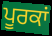
ਪੂਰਕਾਂ